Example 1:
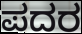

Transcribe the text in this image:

ಪದರ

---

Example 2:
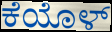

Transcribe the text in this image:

ಕೆಯೊಳ್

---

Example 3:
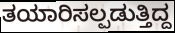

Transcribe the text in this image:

ತಯಾರಿಸಲ್ಪಡುತ್ತಿದ್ದ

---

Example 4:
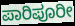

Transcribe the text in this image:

ಪಾರಿಪೂರೀ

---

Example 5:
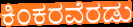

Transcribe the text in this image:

ಕಿಂಕರವೆರಡು